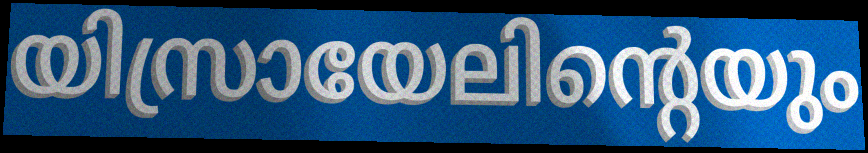
യിസ്രായേലിന്റെയും